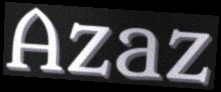
Azaz